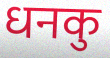
धनकु